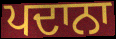
ਪਦਾਨਾ